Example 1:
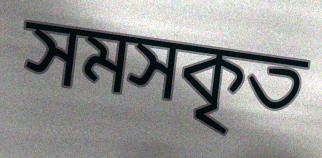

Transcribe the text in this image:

সমসকৃত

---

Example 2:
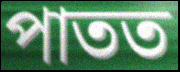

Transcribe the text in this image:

পাতত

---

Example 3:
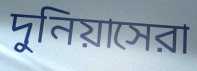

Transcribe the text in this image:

দুনিয়াসেরা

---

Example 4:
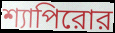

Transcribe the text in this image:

শ্যাপিরোর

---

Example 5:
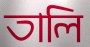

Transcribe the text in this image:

তালি